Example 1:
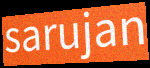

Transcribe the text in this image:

sarujan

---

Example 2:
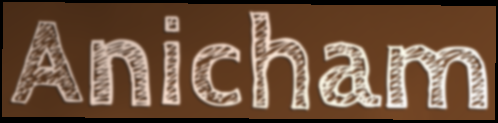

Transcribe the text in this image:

Anicham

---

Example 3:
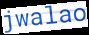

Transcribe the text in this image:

jwalao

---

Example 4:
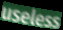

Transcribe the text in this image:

useless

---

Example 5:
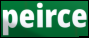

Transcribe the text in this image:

peirce